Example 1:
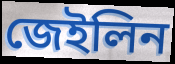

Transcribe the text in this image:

জেইলিন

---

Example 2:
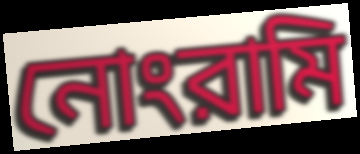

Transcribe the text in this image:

নোংরামি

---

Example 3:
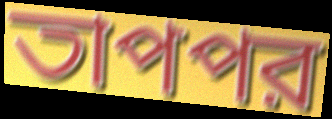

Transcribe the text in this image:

তাপপর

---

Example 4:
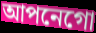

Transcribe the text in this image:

আপনেগো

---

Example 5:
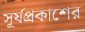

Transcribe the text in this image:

সূর্যপ্রকাশের